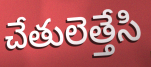
చేతులెత్తేసి